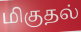
மிகுதல்